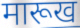
मारूख